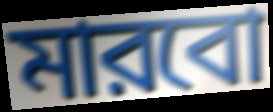
মারবো